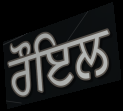
ਰੌਇਲ